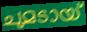
ചുമടായ്